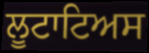
ਲੂਟਾਟਿਅਸ